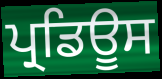
ਪ੍ਰਡਿਊਸ